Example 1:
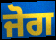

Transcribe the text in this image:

ਜੋਗ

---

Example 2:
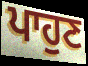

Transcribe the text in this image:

ਪਾਹੁਣ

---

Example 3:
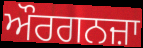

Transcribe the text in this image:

ਔਰਗਨਜ਼ਾ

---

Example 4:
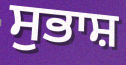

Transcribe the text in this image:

ਸੁਭਾਸ਼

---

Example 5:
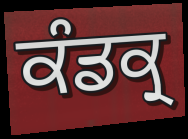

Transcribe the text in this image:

ਕੰਡਕ੍ਰ